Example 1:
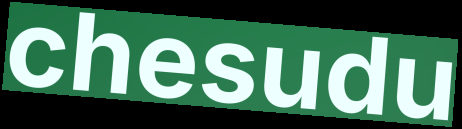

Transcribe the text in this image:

chesudu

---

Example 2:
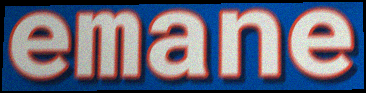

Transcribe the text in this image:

emane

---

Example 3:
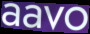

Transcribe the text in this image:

aavo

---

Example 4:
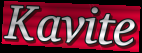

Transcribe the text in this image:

Kavite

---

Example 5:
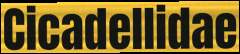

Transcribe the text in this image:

Cicadellidae